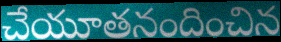
చేయూతనందించిన